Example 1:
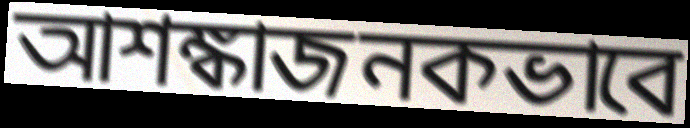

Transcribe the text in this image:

আশঙ্কাজনকভাবে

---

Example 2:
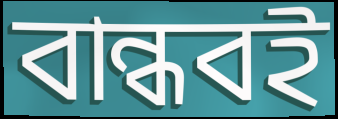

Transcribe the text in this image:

বান্ধবই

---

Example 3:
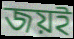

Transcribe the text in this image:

জয়ই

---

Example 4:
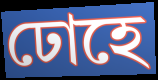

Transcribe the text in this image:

ঢোহে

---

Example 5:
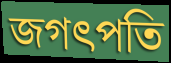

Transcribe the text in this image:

জগৎপতি